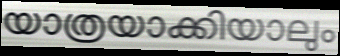
യാത്രയാക്കിയാലും